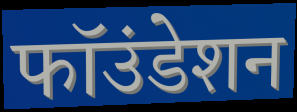
फॉउंडेशन